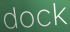
dock